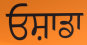
ਓਸ਼ਾਡਾ